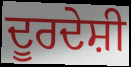
ਦੂਰਦੇਸ਼ੀ